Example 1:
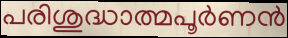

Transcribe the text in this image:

പരിശുദ്ധാത്മപൂർണൻ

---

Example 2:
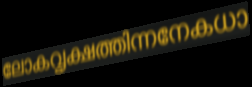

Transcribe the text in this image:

ലോകവൃക്ഷത്തിന്നനേകധാ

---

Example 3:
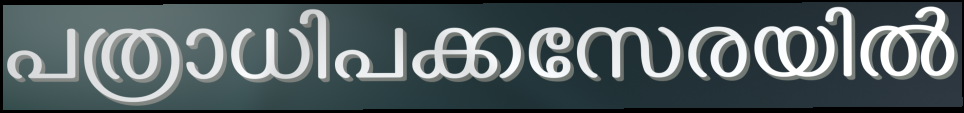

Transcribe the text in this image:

പത്രാധിപക്കസേരയിൽ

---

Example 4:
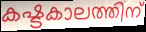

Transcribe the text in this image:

കഷ്ടകാലത്തിന്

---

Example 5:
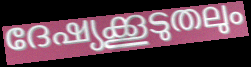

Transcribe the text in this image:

ദേഷ്യക്കൂടുതലും